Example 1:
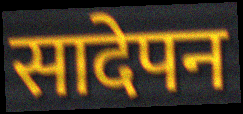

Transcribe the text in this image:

सादेपन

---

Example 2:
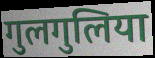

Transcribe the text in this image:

गुलगुलिया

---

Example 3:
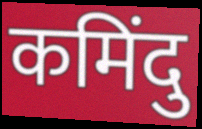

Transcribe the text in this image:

कमिंदु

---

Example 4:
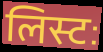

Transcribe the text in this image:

लिस्टः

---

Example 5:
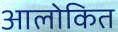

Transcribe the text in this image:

आलोकित